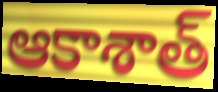
ఆకాశాత్